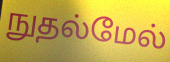
நுதல்மேல்